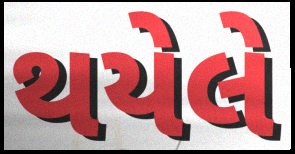
થયેલે